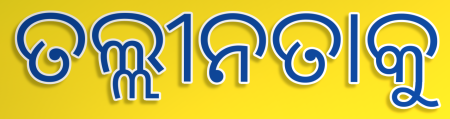
ତଲ୍ଲୀନତାକୁ